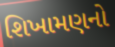
શિખામણનો